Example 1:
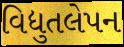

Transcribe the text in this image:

વિદ્યુતલેપન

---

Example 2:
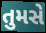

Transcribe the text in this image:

તુમસે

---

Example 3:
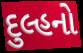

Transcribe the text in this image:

દુલ્હનો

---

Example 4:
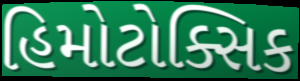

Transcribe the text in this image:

હિમોટોક્સિક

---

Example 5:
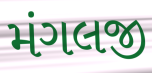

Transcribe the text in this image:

મંગલજી